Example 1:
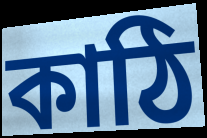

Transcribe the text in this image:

কাঠি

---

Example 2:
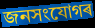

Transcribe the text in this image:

জনসংযোগৰ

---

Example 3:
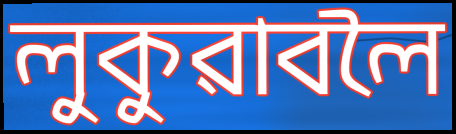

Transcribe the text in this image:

লুকুৱাবলৈ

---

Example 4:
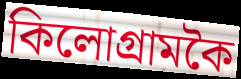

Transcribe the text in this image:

কিলোগ্ৰামকৈ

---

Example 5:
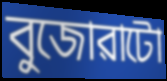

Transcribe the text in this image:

বুজোৱাটো